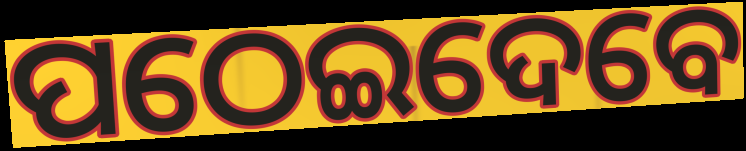
ପଠେଇଦେବେ